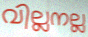
വില്ലനല്ല